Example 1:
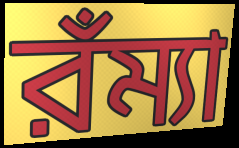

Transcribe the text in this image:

রঁম্যা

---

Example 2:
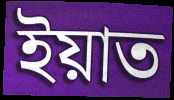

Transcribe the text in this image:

ইয়াত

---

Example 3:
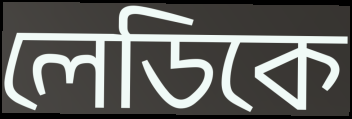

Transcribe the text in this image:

লেডিকে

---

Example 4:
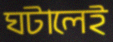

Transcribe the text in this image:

ঘটালেই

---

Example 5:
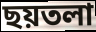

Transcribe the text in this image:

ছয়তলা